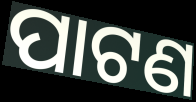
ପାଟଣ